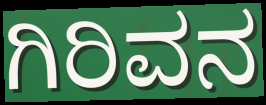
ಗಿರಿವನ